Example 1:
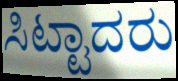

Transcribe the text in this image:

ಸಿಟ್ಟಾದರು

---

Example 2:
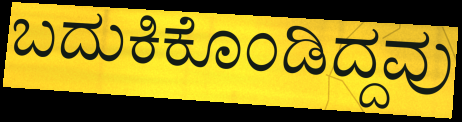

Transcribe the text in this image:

ಬದುಕಿಕೊಂಡಿದ್ದವು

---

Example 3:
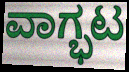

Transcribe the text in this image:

ವಾಗ್ಭಟ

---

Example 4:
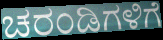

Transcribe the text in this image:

ಚರಂಡಿಗಳಿಗೆ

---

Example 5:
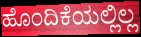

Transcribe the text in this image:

ಹೊಂದಿಕೆಯಲ್ಲಿಲ್ಲ